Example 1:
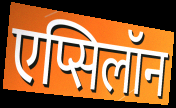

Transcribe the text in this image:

एप्सिलॉन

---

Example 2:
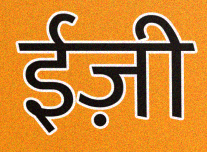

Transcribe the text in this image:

ईज़ी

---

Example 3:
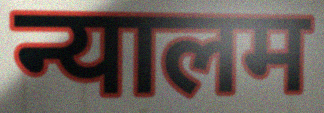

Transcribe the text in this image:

न्यालम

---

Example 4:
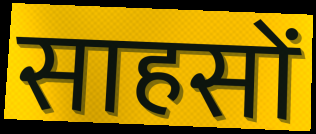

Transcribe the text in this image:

साहसों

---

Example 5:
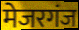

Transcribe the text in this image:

मेजरगंज